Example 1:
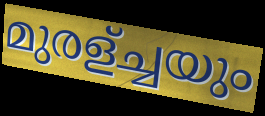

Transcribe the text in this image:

മുരള്ച്ചയും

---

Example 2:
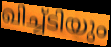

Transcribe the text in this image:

ഖിച്ച്ടിയും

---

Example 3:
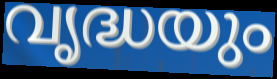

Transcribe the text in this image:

വൃദ്ധയും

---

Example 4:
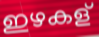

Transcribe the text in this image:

ഇഴകള്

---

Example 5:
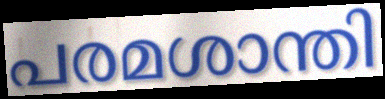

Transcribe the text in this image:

പരമശാന്തി